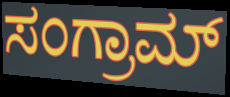
ಸಂಗ್ರಾಮ್